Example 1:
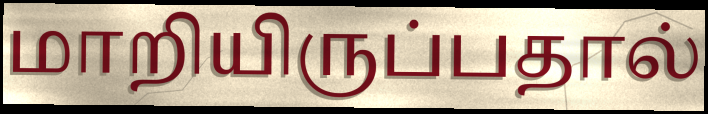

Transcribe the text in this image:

மாறியிருப்பதால்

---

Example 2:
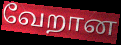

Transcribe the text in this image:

வேறான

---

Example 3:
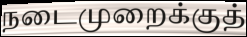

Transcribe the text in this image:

நடைமுறைக்குத்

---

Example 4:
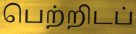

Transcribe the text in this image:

பெற்றிடப்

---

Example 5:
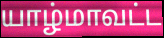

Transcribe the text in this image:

யாழ்மாவட்ட